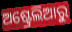
ଅଷ୍ଟ୍ରେଲିଆରୁ